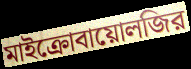
মাইক্রোবায়োলজির